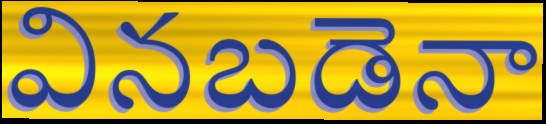
వినబడెనా